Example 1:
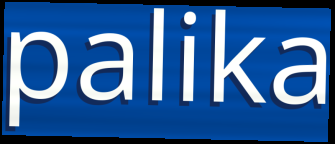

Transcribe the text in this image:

palika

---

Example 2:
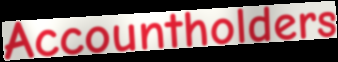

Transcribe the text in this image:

Accountholders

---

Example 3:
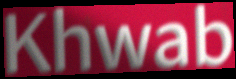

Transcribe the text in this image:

Khwab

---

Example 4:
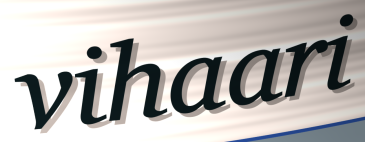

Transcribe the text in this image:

vihaari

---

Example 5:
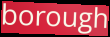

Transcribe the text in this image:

borough